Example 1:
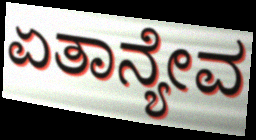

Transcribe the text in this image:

ಏತಾನ್ಯೇವ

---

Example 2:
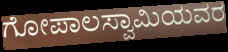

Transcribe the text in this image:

ಗೋಪಾಲಸ್ವಾಮಿಯವರ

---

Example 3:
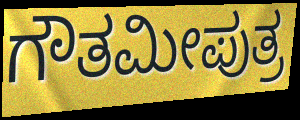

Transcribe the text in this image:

ಗೌತಮೀಪುತ್ರ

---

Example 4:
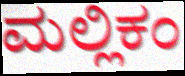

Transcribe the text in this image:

ಮಲ್ಲಿಕಂ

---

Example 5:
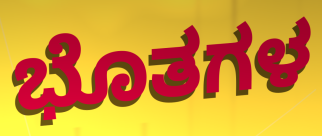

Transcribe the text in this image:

ಭೊತಗಳ